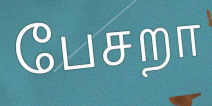
பேசறா